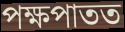
পক্ষপাতত